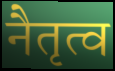
नैतृत्व